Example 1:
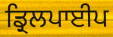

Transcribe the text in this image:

ਡ੍ਰਿਲਪਾਈਪ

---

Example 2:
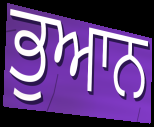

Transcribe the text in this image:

ਭੁਆਨ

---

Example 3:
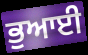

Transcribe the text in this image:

ਭੁਆਈ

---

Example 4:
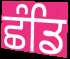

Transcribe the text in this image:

ਛੰਡਿ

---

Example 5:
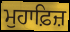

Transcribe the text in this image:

ਮੁਹਾਫ਼ਿਜ਼